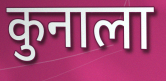
कुनाला